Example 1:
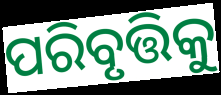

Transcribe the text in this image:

ପରିବୃତ୍ତିକୁ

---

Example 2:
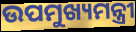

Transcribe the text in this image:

ଉପମୁଖ୍ୟମନ୍ତ୍ରୀ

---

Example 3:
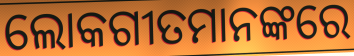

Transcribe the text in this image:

ଲୋକଗୀତମାନଙ୍କରେ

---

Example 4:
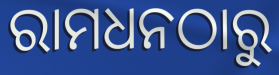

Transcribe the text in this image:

ରାମଧନଠାରୁ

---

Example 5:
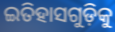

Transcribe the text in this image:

ଇତିହାସଗୁଡ଼ିକୁ